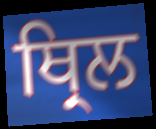
ਥ੍ਰਿਲ